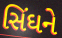
સિંઘને